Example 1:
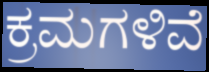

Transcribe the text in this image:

ಕ್ರಮಗಳಿವೆ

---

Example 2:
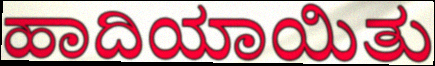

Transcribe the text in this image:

ಹಾದಿಯಾಯಿತು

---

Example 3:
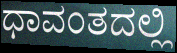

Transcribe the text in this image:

ಧಾವಂತದಲ್ಲಿ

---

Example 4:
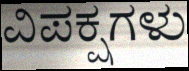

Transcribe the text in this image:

ವಿಪಕ್ಷಗಳು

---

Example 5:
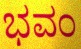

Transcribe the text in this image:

ಭವಂ